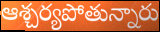
ఆశ్చర్యపోతున్నారు